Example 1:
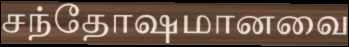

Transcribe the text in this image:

சந்தோஷமானவை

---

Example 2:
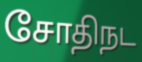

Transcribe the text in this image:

சோதிநட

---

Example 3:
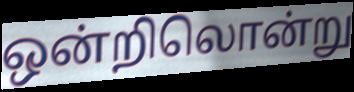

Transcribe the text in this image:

ஒன்றிலொன்று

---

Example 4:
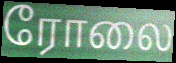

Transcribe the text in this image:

ரோலை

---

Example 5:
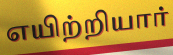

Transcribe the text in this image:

எயிற்றியார்